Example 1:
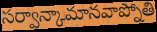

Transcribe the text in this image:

సర్వాన్కామానవాప్నోతి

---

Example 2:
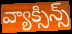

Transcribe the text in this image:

వ్యాక్సిన్స్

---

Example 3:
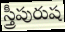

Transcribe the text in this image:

స్త్రీపురుష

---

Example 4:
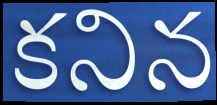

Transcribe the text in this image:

కనిన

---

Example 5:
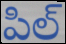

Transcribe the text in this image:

పిల్